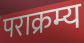
पराक्रम्य